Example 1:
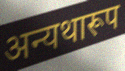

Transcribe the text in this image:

अन्यथारूप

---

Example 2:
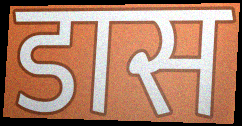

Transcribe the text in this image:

डास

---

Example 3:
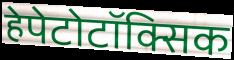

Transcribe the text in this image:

हेपेटोटॉक्सिक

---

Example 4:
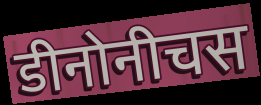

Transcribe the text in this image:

डीनोनीचस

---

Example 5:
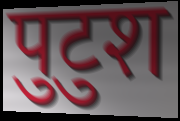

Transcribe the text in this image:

पुटुश